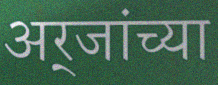
अर्जांच्या